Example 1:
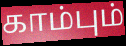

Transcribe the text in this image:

காம்பும்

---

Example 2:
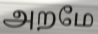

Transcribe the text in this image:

அறமே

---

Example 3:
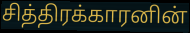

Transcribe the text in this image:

சித்திரக்காரனின்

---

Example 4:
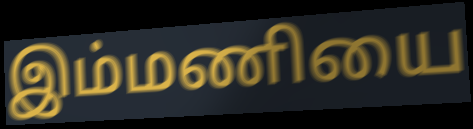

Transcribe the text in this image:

இம்மணியை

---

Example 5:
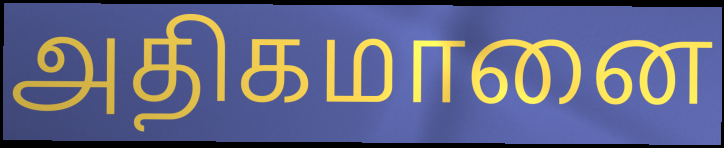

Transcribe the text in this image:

அதிகமானை